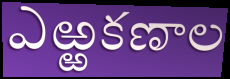
ఎఱ్ఱకణాల